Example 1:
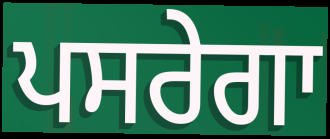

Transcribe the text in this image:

ਪਸਰੇਗਾ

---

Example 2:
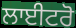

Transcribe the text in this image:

ਲਾਈਟਰੋ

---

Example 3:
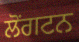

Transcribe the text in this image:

ਲੋਂਗਟਨ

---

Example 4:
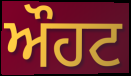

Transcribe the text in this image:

ਔਹਟ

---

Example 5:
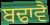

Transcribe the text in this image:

ਬਢਾਵੈ